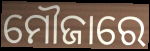
ମୌଜାରେ